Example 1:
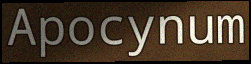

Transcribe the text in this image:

Apocynum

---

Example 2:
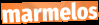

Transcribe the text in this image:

marmelos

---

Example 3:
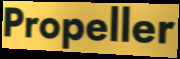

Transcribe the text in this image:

Propeller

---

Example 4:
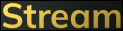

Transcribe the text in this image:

Stream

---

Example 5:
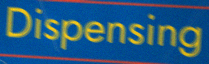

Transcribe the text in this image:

Dispensing